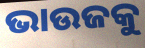
ଭାଉଜକୁ